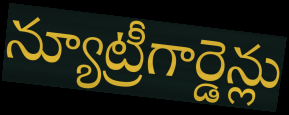
న్యూట్రీగార్డెన్లు